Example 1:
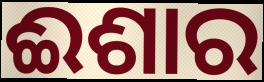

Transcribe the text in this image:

ଈଶାର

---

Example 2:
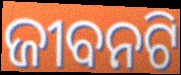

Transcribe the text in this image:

ଜୀବନଟି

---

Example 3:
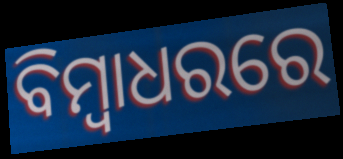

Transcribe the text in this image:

ବିମ୍ୱାଧରରେ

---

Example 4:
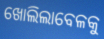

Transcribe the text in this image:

ଖୋଲିଲାବେଳକୁ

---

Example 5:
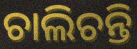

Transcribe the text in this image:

ଚାଲିଚନ୍ତି